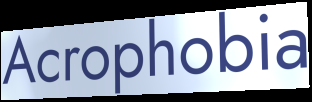
Acrophobia